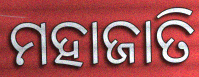
ମହାଜାତି